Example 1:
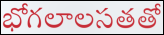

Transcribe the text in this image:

భోగలాలసతతో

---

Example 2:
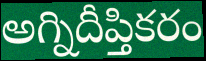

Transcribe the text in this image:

అగ్నిదీప్తికరం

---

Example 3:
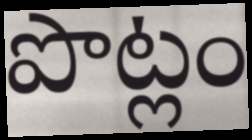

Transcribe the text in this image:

పొట్లం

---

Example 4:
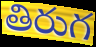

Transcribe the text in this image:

తిరుగ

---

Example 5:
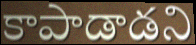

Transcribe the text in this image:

కాపాడాడని